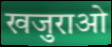
खजुराओ